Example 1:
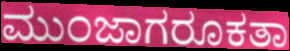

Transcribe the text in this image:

ಮುಂಜಾಗರೂಕತಾ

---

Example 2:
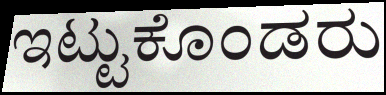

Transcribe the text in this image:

ಇಟ್ಟುಕೊಂಡರು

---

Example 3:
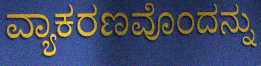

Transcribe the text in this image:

ವ್ಯಾಕರಣವೊಂದನ್ನು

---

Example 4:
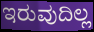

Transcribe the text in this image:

ಇರುವುದಿಲ್ಲ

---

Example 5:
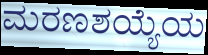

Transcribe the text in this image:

ಮರಣಶಯ್ಯೆಯ